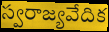
స్వరాజ్యవేదిక